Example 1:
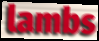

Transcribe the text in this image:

lambs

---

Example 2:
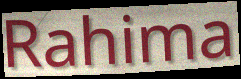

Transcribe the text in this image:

Rahima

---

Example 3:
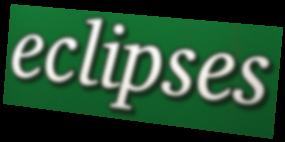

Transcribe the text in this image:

eclipses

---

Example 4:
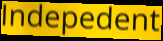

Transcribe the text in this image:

Indepedent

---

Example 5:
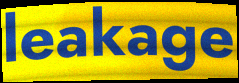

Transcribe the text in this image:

leakage